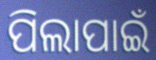
ପିଲାପାଇଁ